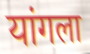
यांगला